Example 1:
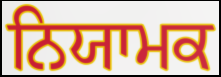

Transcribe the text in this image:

ਨਿਯਾਮਕ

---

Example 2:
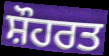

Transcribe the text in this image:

ਸ਼ੌਹਰਤ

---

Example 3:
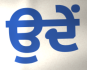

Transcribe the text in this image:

ਉਦੇਂ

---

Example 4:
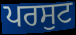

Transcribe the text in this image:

ਪਰਸੁਟ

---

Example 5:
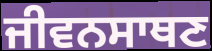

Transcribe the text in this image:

ਜੀਵਨਸਾਥਣ